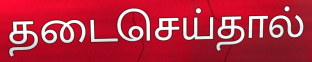
தடைசெய்தால்